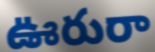
ఊరురా